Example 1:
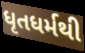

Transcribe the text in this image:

ધૃતધર્મથી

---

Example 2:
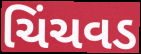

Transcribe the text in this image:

ચિંચવડ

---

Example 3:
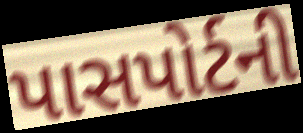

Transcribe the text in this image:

પાસપોર્ટની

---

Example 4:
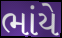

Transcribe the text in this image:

ભાંયે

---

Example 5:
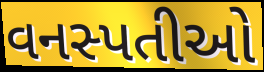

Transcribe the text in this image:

વનસ્પતીઓ